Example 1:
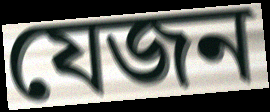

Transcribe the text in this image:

যেজন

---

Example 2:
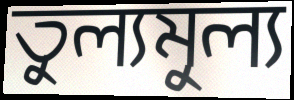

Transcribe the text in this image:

তুল্যমুল্য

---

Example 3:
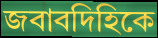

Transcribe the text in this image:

জবাবদিহিকে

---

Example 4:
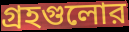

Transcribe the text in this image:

গ্রহগুলোর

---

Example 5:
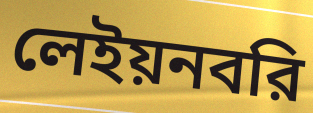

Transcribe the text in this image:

লেইয়নবরি